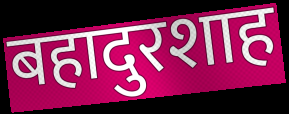
बहादुरशाह